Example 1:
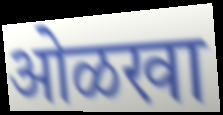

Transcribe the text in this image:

ओळखा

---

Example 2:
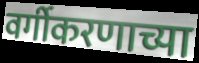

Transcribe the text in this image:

वर्गीकरणाच्या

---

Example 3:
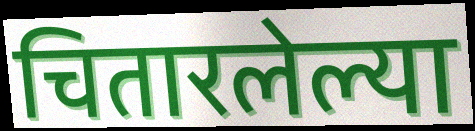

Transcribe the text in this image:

चितारलेल्या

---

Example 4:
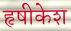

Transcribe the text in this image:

हृषीकेश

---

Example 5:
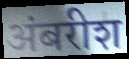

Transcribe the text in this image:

अंबरीश